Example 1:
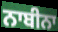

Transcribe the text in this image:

ਨਾਬੀਨਾ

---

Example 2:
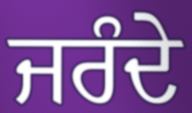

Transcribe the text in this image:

ਜਰੰਦੇ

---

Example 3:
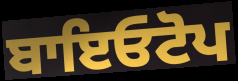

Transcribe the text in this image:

ਬਾਇਓਟੋਪ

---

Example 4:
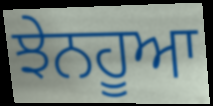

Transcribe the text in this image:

ਝੇਨਹੂਆ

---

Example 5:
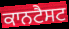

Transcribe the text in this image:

ਕਾਨਟੈਸਟ